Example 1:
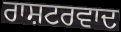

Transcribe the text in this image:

ਰਾਸ਼ਟਰਵਾਦ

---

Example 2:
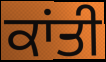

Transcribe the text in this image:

ਕਾਂਤੀ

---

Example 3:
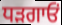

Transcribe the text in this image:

ਧੜਗਾਓਂ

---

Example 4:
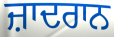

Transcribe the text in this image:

ਜ਼ਾਦਰਾਨ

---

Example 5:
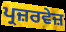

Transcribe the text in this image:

ਪ੍ਰਜ਼ਰਵੇਜ਼